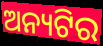
ଅନ୍ୟଟିର